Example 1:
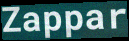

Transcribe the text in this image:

Zappar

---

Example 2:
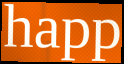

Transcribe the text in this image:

happ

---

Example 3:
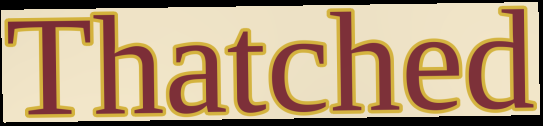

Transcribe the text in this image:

Thatched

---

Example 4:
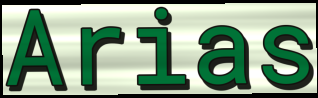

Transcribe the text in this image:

Arias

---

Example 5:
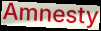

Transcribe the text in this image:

Amnesty